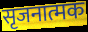
सृजनात्मक